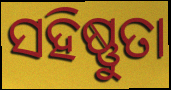
ସହିଷ୍ଣୁତା